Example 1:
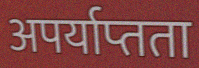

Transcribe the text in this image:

अपर्याप्‍तता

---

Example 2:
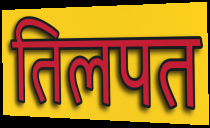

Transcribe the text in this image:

तिलपत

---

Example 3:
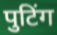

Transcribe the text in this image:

पुटिंग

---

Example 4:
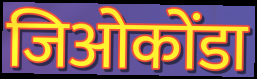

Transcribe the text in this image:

जिओकोंडा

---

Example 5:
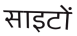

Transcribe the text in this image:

साइटों